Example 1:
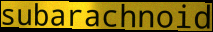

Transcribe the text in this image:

subarachnoid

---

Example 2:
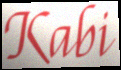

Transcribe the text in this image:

Kabi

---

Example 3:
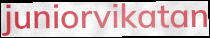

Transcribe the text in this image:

juniorvikatan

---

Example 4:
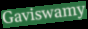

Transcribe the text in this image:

Gaviswamy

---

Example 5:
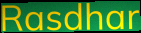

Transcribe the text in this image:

Rasdhar